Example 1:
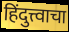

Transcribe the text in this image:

हिंदुत्त्वाचा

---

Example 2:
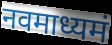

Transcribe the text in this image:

नवमाध्यमं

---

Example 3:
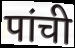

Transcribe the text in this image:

पांची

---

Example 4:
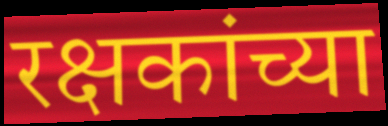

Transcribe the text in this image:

रक्षकांच्या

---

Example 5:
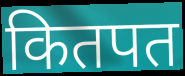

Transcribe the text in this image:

कितपत